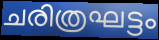
ചരിത്രഘട്ടം